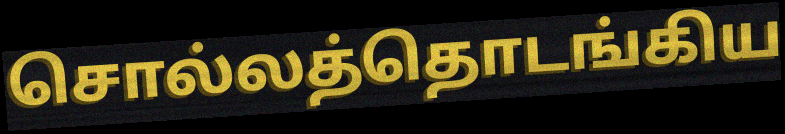
சொல்லத்தொடங்கிய